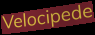
Velocipede